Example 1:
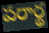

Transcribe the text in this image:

పరార్థ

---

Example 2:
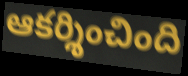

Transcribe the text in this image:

ఆకర్శించింది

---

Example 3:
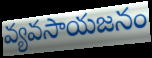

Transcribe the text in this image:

వ్యవసాయజనం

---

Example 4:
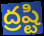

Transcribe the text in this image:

ద్రష్టి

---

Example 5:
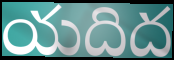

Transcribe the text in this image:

యదిద